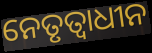
ନେତୃତ୍ୱାଧୀନ